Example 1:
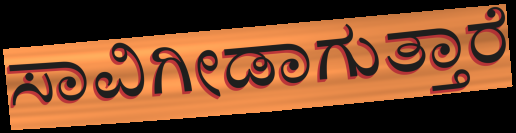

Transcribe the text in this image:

ಸಾವಿಗೀಡಾಗುತ್ತಾರೆ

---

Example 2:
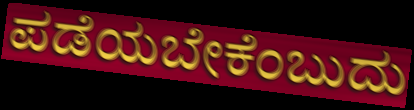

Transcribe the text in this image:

ಪಡೆಯಬೇಕೆಂಬುದು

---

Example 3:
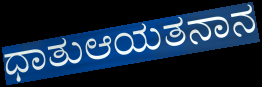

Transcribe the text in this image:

ಧಾತುಆಯತನಾನ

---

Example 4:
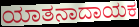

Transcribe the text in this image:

ಯಾತನಾದಾಯಕ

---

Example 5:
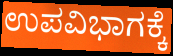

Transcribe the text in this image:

ಉಪವಿಭಾಗಕ್ಕೆ